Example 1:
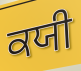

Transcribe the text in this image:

ਕਯੀ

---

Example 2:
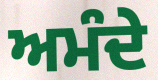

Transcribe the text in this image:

ਅਮੰਦੇ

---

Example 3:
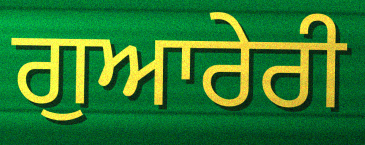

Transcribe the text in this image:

ਗੁਆਰੇਰੀ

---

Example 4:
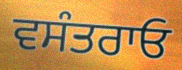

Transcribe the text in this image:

ਵਸੰਤਰਾਓ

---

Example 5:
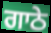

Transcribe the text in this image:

ਗਾਠੇ